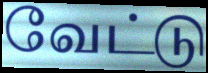
வேட்டு